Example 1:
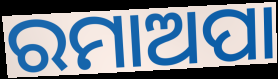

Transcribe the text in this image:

ରମାଅପା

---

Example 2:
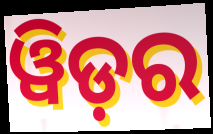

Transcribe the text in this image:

ୱିଡ଼ର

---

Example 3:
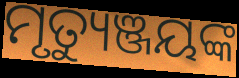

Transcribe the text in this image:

ମୃତ୍ୟୁଞ୍ଜୟଙ୍କ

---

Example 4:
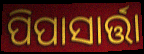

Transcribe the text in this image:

ପିପାସାର୍ତ୍ତା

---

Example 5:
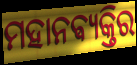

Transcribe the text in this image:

ମହାନଵ୍ୟକ୍ତିର